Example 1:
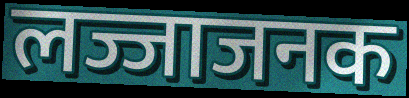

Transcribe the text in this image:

लज्जाजनक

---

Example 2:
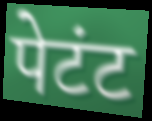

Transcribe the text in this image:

पेटंट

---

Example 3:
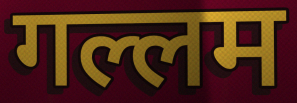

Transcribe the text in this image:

गल्लम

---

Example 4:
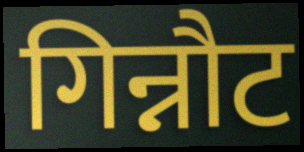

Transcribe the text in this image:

गिन्नौट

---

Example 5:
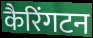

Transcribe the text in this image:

कैरिंगटन